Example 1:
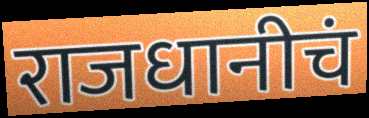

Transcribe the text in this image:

राजधानीचं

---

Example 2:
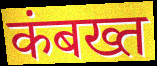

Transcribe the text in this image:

कंबख्त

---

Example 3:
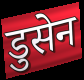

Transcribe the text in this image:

डुसेन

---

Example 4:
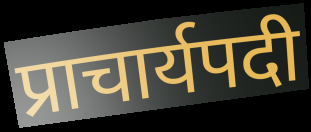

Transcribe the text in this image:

प्राचार्यपदी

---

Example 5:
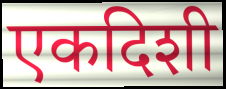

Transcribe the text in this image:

एकदिशी